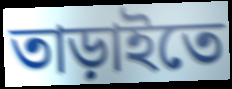
তাড়াইতে